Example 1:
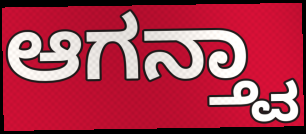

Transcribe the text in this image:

ಆಗನ್ತ್ವಾ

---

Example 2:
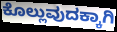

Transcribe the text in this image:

ಕೊಲ್ಲುವುದಕ್ಕಾಗಿ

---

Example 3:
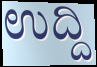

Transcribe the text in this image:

ಉದ್ದಿ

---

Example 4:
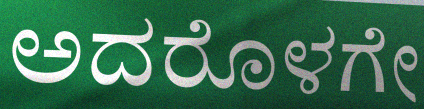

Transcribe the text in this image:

ಅದರೊಳಗೇ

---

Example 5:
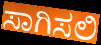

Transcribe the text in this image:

ಸಾಗಿಸಲಿ